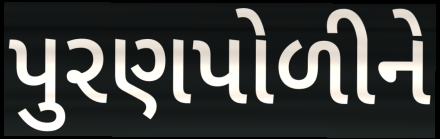
પુરણપોળીને